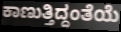
ಕಾಣುತ್ತಿದ್ದಂತೆಯೆ